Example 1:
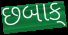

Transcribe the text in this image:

છબાક્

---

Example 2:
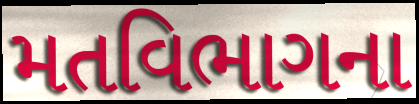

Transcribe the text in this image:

મતવિભાગના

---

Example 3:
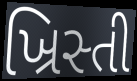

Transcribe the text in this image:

ખ્રિસ્તી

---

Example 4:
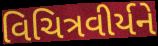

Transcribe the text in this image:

વિચિત્રવીર્યને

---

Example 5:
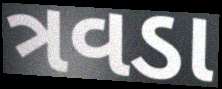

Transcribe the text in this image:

ત્રવડા